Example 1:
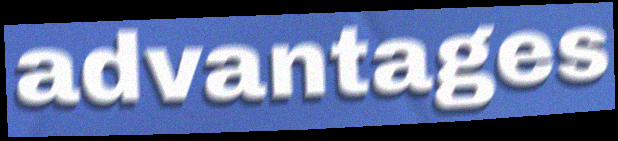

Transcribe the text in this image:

advantages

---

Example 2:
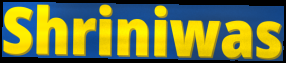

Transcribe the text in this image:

Shriniwas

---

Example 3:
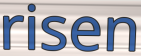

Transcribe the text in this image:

risen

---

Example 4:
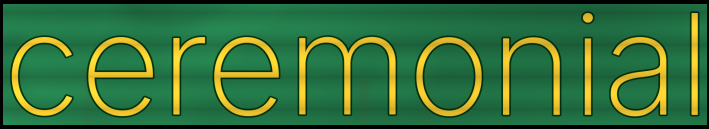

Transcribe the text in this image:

ceremonial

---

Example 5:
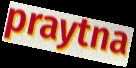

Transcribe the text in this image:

praytna